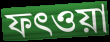
ফৎওয়া